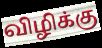
விழிக்கு